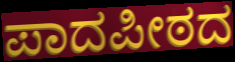
ಪಾದಪೀಠದ